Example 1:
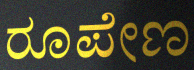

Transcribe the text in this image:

ರೂಪೇಣ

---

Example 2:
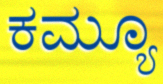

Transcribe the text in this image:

ಕಮ್ಯೂ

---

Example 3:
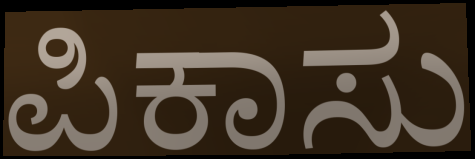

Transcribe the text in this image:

ಪಿಕಾಸು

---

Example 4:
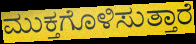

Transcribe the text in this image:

ಮುಕ್ತಗೊಳಿಸುತ್ತಾರೆ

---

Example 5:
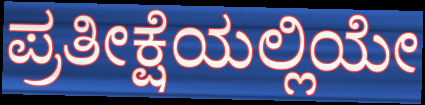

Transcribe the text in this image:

ಪ್ರತೀಕ್ಷೆಯಲ್ಲಿಯೇ